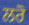
ਲਰੋ